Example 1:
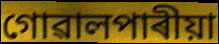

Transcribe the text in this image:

গোৱালপাৰীয়া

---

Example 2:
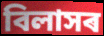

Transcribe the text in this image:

বিলাসৰ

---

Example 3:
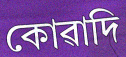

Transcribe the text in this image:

কোৱাদি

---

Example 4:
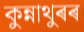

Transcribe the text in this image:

কুন্নাথুৰৰ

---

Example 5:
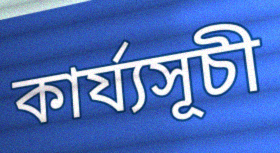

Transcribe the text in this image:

কাৰ্য্যসূচী